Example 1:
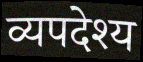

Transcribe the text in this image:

व्यपदेश्य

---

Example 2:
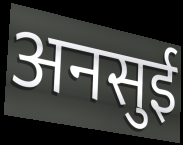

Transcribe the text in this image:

अनसुई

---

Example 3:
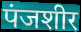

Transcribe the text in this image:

पंजशीर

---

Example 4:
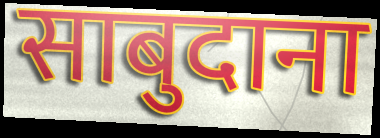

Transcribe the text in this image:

साबुदाना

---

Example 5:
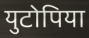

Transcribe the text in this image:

युटोपिया